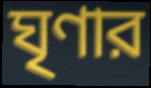
ঘৃণার